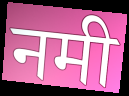
नमी